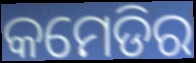
କମେଡିର